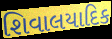
શિવાલયાદિક